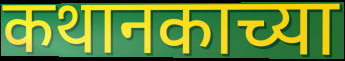
कथानकाच्या